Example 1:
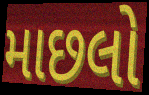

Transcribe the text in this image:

માછલો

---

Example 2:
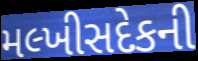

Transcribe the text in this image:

મલ્ખીસદેકની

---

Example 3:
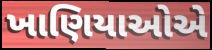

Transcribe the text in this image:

ખાણિયાઓએ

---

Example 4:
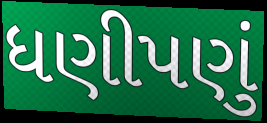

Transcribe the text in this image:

ધણીપણું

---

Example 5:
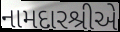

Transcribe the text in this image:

નામદારશ્રીએ